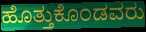
ಹೊತ್ತುಕೊಂಡವರು